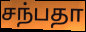
சந்பதா